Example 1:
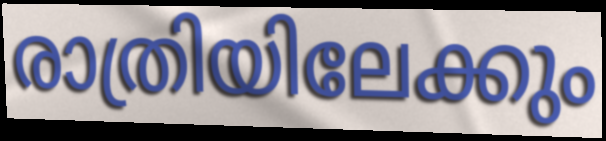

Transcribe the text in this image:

രാത്രിയിലേക്കും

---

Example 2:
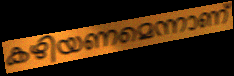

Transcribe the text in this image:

കഴിയണമെന്നാണ്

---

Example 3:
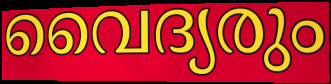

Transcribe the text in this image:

വൈദ്യരും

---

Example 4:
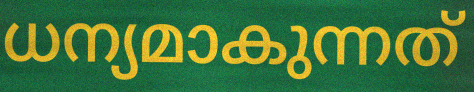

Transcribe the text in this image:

ധന്യമാകുന്നത്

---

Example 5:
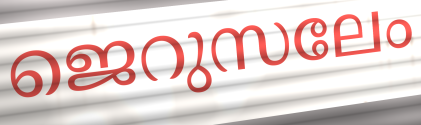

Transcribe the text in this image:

ജെറുസലേം